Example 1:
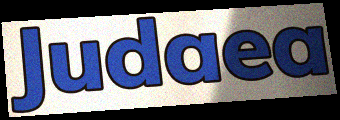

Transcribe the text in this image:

Judaea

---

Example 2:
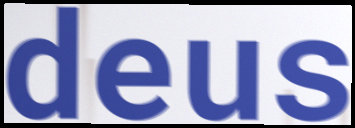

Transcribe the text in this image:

deus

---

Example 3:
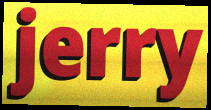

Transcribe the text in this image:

jerry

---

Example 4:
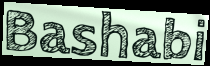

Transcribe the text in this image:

Bashabi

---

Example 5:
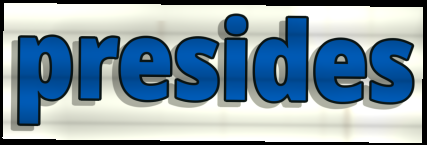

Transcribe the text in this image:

presides